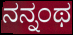
ನನ್ನಂಥ